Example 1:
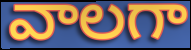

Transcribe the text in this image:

వాలగా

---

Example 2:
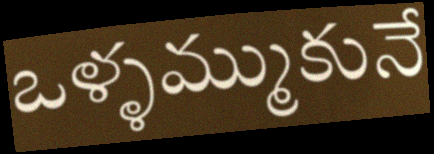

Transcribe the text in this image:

ఒళ్ళమ్ముకునే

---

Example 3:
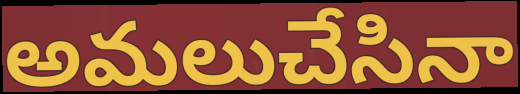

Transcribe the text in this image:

అమలుచేసినా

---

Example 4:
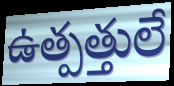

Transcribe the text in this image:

ఉత్పత్తులే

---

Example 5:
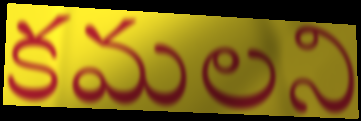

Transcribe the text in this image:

కమలని